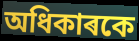
অধিকাৰকে